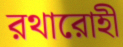
রথারোহী